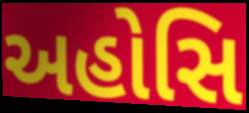
અહોસિ